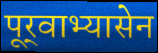
पूर्वाभ्यासेन